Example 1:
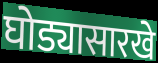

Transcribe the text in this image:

घोड्यासारखे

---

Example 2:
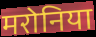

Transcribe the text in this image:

मरोनिया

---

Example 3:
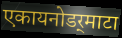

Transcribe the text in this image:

एकायनोडर्माटा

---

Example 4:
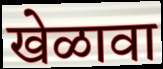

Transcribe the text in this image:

खेळावा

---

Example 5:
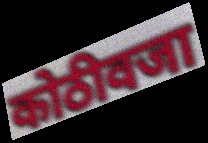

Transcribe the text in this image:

कोठीवजा